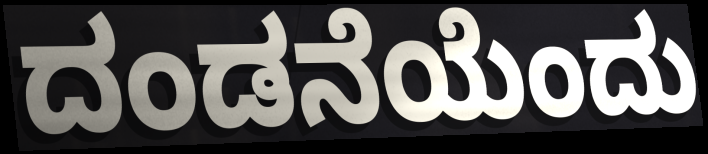
ದಂಡನೆಯೆಂದು